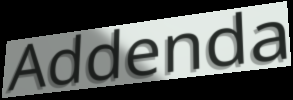
Addenda